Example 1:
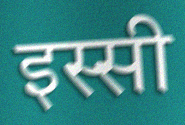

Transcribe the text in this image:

इस्सी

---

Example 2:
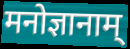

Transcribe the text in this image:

मनोज्ञानाम्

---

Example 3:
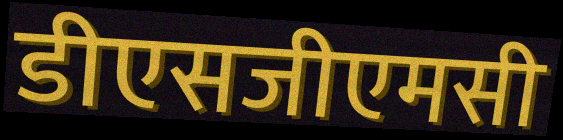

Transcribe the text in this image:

डीएसजीएमसी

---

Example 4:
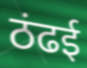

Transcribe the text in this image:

ठंढई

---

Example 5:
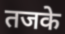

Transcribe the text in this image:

तजके